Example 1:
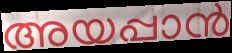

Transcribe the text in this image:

അയപ്പാൻ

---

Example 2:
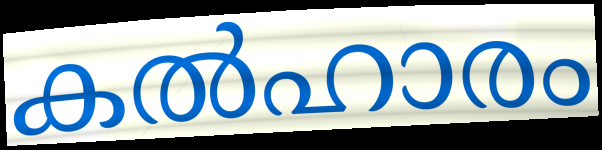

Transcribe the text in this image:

കൽഹാരം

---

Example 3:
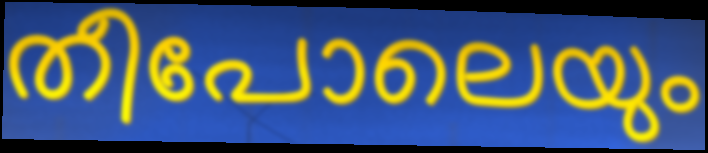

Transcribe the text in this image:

തീപോലെയും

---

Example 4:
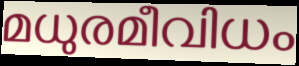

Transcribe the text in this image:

മധുരമീവിധം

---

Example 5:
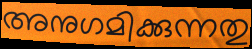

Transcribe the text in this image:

അനുഗമിക്കുന്നതു